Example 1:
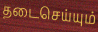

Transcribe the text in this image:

தடைசெய்யும்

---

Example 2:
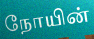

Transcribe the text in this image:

நோயின்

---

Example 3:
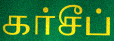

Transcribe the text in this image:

கர்சீப்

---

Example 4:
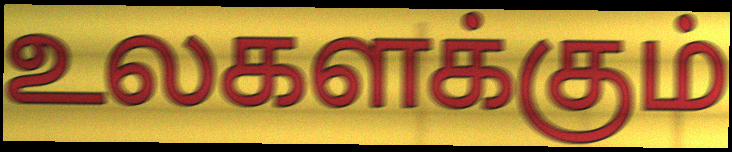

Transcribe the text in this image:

உலகளக்கும்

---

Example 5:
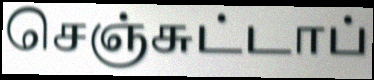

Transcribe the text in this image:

செஞ்சுட்டாப்